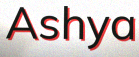
Ashya